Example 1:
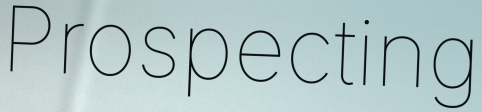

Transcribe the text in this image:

Prospecting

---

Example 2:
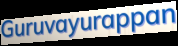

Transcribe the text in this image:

Guruvayurappan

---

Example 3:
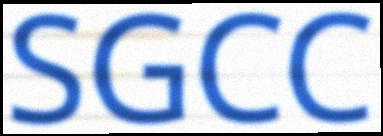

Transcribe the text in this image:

SGCC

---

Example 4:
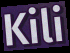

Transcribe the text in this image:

Kili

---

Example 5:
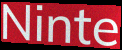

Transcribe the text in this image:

Ninte